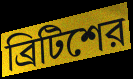
ব্রিটিশের